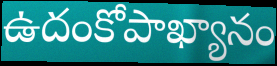
ఉదంకోపాఖ్యానం